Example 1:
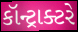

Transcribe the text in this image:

કૉન્ટ્રાક્ટરે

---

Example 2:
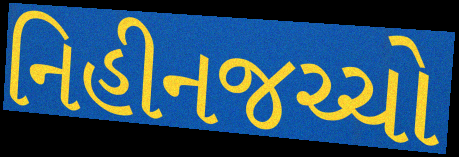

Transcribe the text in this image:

નિહીનજચ્ચો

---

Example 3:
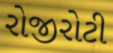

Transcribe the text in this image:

રોજીરોટી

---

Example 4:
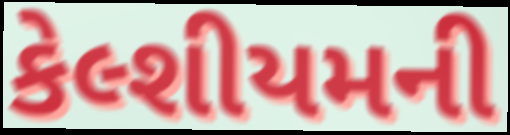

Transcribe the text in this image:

કેલ્શીયમની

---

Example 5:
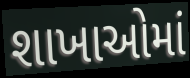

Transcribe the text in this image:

શાખાઓમાં